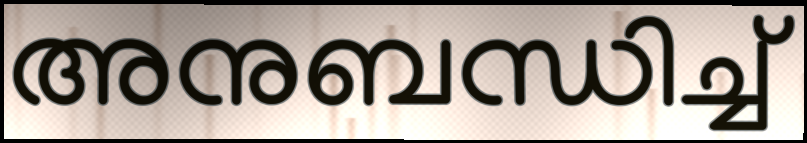
അനുബന്ധിച്ച്